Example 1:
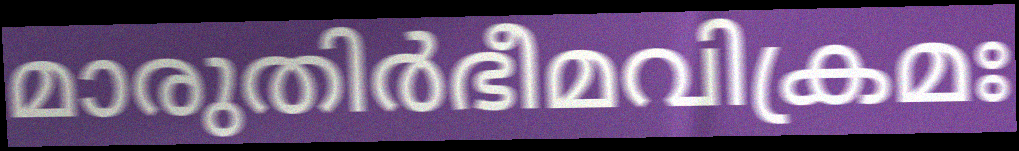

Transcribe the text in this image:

മാരുതിർഭീമവിക്രമഃ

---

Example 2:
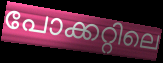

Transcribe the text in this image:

പോക്കറ്റിലെ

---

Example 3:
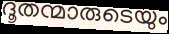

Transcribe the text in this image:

ദൂതന്മാരുടെയും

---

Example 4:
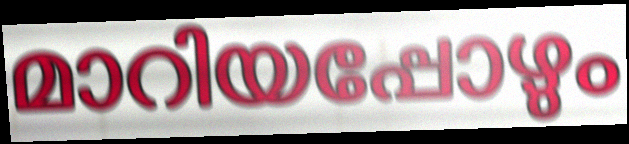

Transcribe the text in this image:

മാറിയപ്പോഴും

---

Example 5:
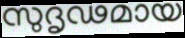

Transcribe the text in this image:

സുദൃഢമായ